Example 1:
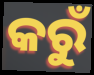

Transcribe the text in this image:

କରୁଁ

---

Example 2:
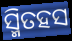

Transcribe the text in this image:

ସ୍ମିତହସ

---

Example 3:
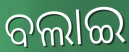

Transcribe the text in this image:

ବଲାଇ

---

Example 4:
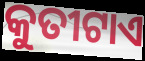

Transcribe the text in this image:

କୁତୀଟାଏ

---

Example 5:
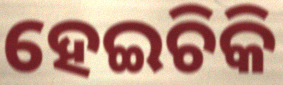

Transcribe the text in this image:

ହେଇଚିକି